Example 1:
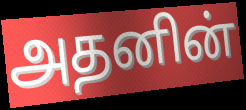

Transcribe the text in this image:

அதனின்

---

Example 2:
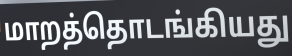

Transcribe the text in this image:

மாறத்தொடங்கியது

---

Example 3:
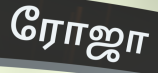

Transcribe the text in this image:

ரோஜா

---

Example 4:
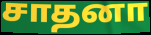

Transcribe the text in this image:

சாதனா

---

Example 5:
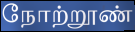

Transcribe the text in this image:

நோற்றூண்